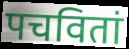
पचवितां